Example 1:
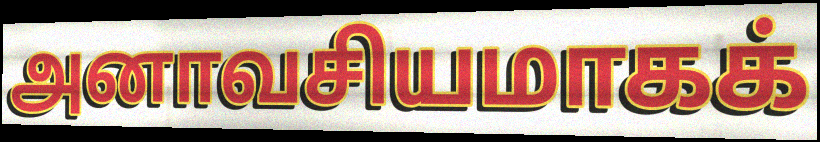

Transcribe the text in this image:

அனாவசியமாகக்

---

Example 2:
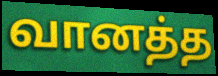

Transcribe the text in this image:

வானத்த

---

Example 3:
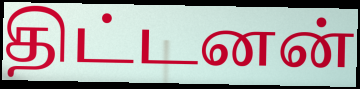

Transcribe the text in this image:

திட்டனன்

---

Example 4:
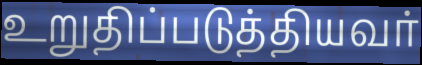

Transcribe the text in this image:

உறுதிப்படுத்தியவர்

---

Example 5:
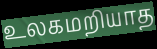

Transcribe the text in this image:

உலகமறியாத